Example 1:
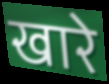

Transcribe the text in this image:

खारे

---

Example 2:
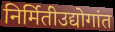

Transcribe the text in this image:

निर्मितीउद्योगांत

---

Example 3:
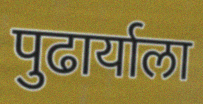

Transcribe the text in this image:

पुढार्याला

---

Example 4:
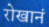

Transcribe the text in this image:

रोखानं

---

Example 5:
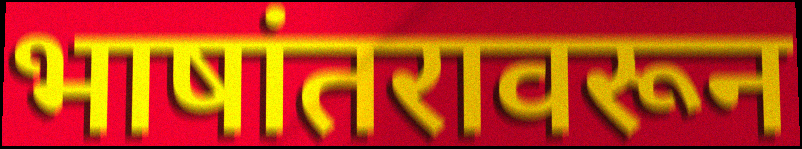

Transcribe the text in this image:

भाषांतरावरून